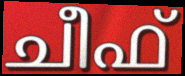
ചീഫ്